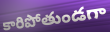
కారిపోతుండగా